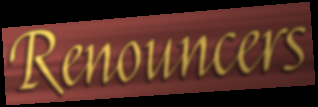
Renouncers